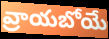
వ్రాయబోయే